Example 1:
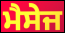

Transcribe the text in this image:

ਮੈਸੇਜ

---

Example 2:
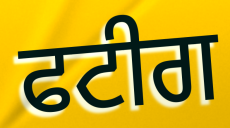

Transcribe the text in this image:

ਫਟੀਗ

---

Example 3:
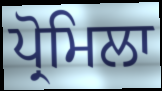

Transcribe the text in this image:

ਪ੍ਰੋਮਿਲਾ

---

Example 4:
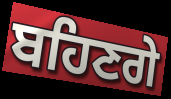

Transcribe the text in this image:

ਬਹਿਣਗੇ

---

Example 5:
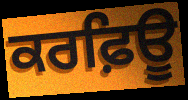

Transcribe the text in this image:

ਕਰਫ਼ਿਊ